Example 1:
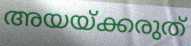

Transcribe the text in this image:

അയയ്ക്കരുത്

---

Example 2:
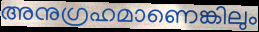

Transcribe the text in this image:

അനുഗ്രഹമാണെങ്കിലും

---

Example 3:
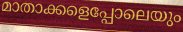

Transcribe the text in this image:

മാതാക്കളെപ്പോലെയും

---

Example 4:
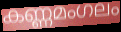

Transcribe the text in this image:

കണ്ണമംഗലം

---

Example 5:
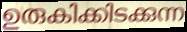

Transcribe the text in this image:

ഉരുകിക്കിടക്കുന്ന